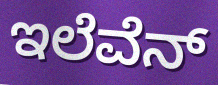
ಇಲೆವೆನ್